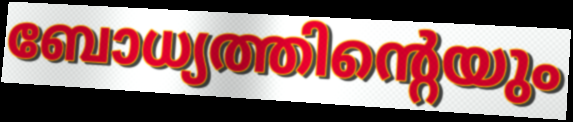
ബോധ്യത്തിന്റെയും